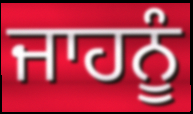
ਜਾਹਨੂੰ